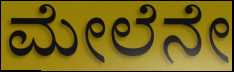
ಮೇಲೆನೇ